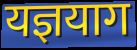
यज्ञयाग